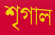
শৃগাল